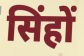
सिंहों